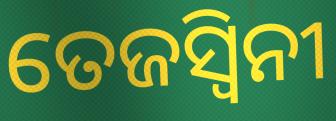
ତେଜସ୍ଵିନୀ